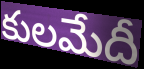
కులమేదీ